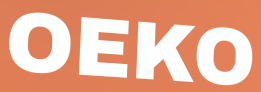
OEKO